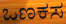
ಒಣಕಸ